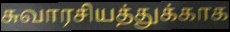
சுவாரசியத்துக்காக